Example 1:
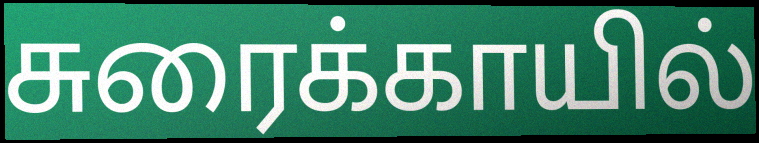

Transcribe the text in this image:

சுரைக்காயில்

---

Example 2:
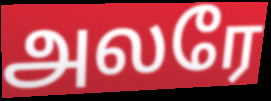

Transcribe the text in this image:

அலரே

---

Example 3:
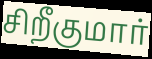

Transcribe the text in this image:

சிறீகுமார்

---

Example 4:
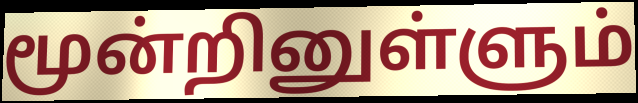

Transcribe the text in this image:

மூன்றினுள்ளும்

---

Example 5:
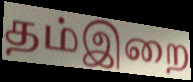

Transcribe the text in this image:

தம்இறை